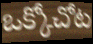
ఒక్కోచోట